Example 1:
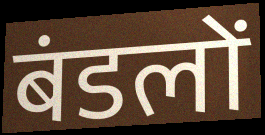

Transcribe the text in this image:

बंडलों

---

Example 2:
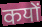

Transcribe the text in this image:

कयों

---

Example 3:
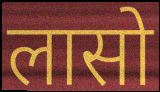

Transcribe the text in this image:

लासो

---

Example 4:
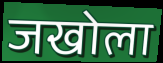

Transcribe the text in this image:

जखोला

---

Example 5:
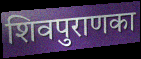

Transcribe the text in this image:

शिवपुराणका